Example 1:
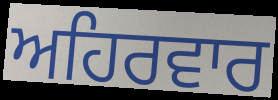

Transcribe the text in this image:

ਅਹਿਰਵਾਰ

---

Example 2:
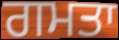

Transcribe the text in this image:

ਗਮਤਾ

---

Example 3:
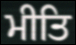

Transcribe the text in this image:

ਮੀਤਿ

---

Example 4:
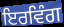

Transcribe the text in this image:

ਇਰਵਿੰਗ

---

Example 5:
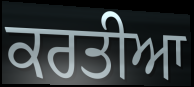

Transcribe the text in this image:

ਕਰਤੀਆ